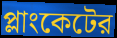
প্লাংকেটের